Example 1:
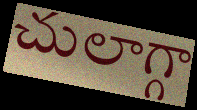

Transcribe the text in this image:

చులాగ్గా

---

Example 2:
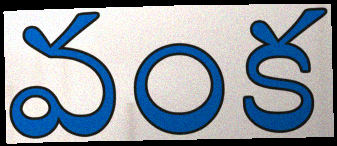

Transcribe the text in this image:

వంక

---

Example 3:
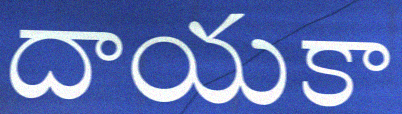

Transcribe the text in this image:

దాయకా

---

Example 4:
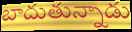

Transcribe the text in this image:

బాదుతున్నాడు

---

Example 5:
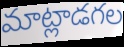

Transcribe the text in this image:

మాట్లాడగల